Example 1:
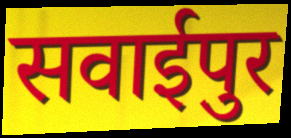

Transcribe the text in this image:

सवाईपुर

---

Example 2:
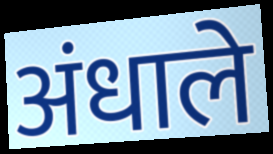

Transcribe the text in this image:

अंधाले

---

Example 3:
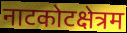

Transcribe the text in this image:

नाटकोटक्षेत्रम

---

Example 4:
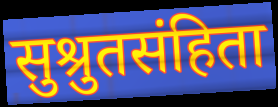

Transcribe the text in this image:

सुश्रुतसंहिता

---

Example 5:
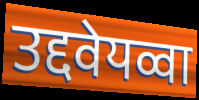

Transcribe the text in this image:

उद्दवेयव्वा